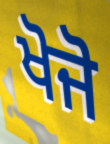
ਖੋਜੋ